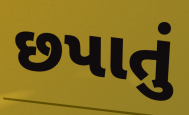
છપાતું